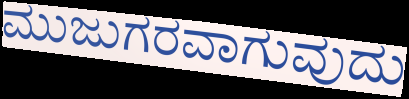
ಮುಜುಗರವಾಗುವುದು